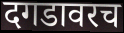
दगडावरच